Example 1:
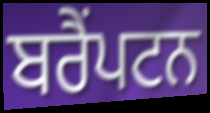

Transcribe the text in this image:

ਬਰੈਂਪਟਨ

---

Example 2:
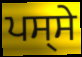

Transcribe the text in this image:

ਪਸ੍ਸੇ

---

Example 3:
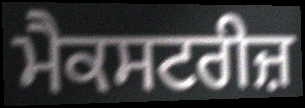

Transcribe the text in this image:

ਮੈਕਸਟਰੀਜ਼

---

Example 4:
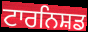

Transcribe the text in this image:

ਟਾਰਨਿਸ਼ਡ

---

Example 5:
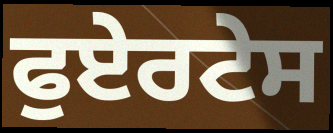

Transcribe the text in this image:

ਫੁਏਰਟੇਸ